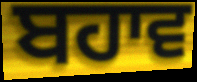
ਬਹਾਵ